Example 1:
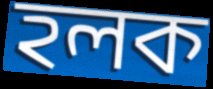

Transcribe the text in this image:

হলক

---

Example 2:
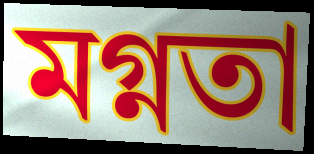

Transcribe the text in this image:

মগ্নতা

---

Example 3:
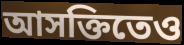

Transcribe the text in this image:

আসক্তিতেও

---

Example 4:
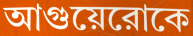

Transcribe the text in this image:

আগুয়েরোকে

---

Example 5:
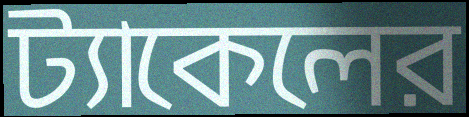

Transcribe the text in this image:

ট্যাকেলের